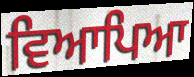
ਵਿਆਪਿਆ